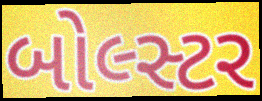
બોલ્સ્ટર